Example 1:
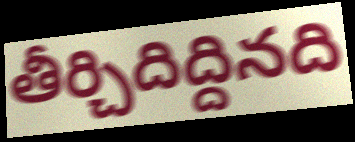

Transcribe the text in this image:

తీర్చిదిద్దినది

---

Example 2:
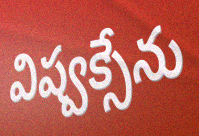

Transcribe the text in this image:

విష్వక్సేను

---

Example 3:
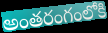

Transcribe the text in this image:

అంతరంగంలోకి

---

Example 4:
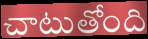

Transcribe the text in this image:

చాటుతోంది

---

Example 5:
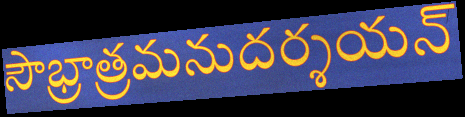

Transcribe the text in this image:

సౌభ్రాత్రమనుదర్శయన్